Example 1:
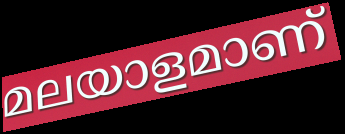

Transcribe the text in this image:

മലയാളമാണ്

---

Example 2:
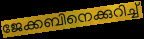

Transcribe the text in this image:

ജേക്കബിനെക്കുറിച്ച്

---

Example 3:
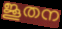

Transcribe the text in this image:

ജൂതന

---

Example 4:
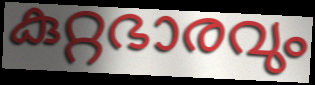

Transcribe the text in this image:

കുറ്റഭാരവും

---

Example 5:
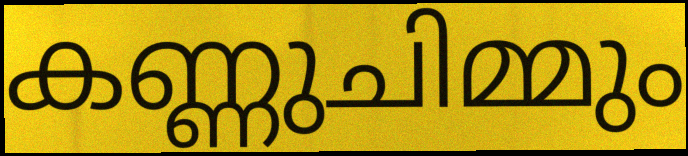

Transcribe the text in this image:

കണ്ണുചിമ്മും